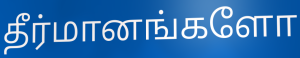
தீர்மானங்களோ